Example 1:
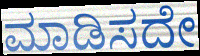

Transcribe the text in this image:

ಮಾಡಿಸದೇ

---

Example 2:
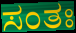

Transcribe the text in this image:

ಸಂತಃ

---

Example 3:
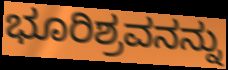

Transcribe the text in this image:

ಭೂರಿಶ್ರವನನ್ನು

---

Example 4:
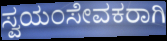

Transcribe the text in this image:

ಸ್ವಯಂಸೇವಕರಾಗಿ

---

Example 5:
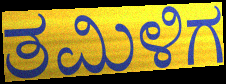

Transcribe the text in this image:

ತಮಿಳಿಗ